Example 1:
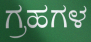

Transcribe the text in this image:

ಗ್ರಹಗಳ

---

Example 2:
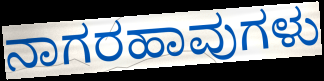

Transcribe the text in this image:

ನಾಗರಹಾವುಗಳು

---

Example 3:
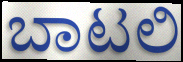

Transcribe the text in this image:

ಬಾಟಲಿ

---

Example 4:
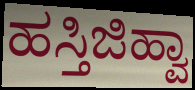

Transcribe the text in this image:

ಹಸ್ತಿಜಿಹ್ವಾ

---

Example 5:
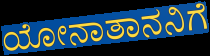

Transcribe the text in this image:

ಯೋನಾತಾನನಿಗೆ